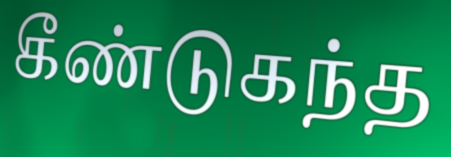
கீண்டுகந்த